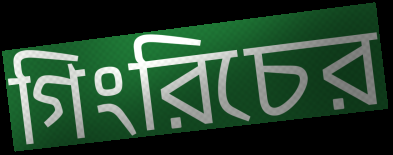
গিংরিচের